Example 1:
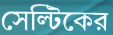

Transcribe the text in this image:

সেল্টিকের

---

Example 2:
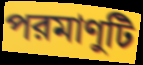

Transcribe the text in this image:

পরমাণুটি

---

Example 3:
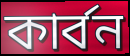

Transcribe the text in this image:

কার্বন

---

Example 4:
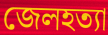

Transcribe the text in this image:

জেলহত্যা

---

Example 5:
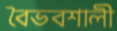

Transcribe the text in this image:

বৈভবশালী